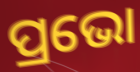
ପ୍ରଭୋ